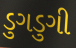
ડુગડુગી